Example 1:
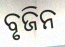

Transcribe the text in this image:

ବୃଜିନ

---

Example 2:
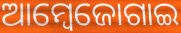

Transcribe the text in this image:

ଆମ୍ବେଜୋଗାଇ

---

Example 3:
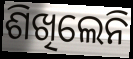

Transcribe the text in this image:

ଶିଖିଲେନି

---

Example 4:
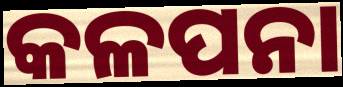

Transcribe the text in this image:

କଳପନା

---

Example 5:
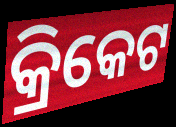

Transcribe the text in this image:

କ୍ରିକେଟ